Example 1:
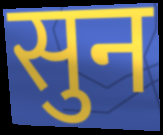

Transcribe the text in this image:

सुन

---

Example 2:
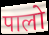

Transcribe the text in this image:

पालो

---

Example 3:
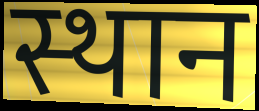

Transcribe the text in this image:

स्थान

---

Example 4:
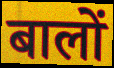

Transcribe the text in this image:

बालों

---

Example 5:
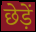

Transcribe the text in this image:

छेड़ें